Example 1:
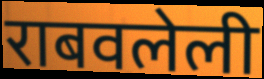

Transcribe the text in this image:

राबवलेली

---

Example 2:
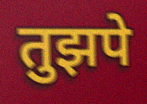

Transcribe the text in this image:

तुझपे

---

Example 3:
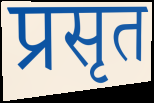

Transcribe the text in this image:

प्रसृत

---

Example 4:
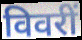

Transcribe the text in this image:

विवरीं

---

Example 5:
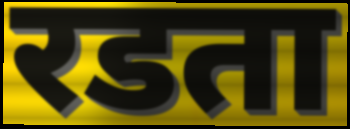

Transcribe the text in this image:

रडता